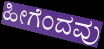
ಹೀಗೆಂದವು